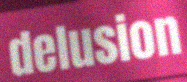
delusion